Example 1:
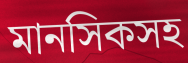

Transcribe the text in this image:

মানসিকসহ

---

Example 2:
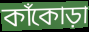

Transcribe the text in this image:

কাঁকোড়া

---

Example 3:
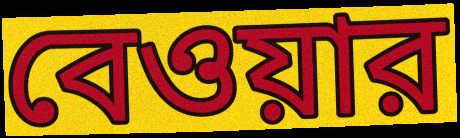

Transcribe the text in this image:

বেওয়ার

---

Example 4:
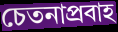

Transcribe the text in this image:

চেতনাপ্রবাহ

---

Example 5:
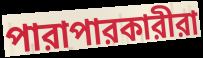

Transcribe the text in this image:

পারাপারকারীরা